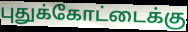
புதுக்கோட்டைக்கு